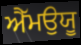
ਐੱਮਉਯੂ